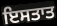
ਇਸਤਾਤ